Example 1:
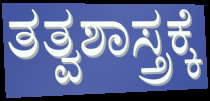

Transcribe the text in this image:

ತತ್ವಶಾಸ್ತ್ರಕ್ಕೆ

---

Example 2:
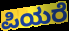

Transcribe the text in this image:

ಪಿಯರೆ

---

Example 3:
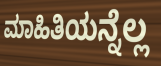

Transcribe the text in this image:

ಮಾಹಿತಿಯನ್ನೆಲ್ಲ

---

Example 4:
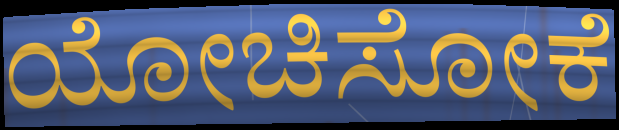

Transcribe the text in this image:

ಯೋಚಿಸೋಕೆ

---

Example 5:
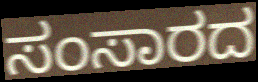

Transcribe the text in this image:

ಸಂಸಾರದ